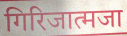
गिरिजात्मजा